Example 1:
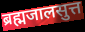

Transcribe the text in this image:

ब्रह्मजालसुत्त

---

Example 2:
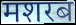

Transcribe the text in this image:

मशरब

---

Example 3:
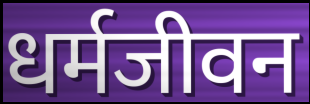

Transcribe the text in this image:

धर्मजीवन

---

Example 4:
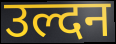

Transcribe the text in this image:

उल्दन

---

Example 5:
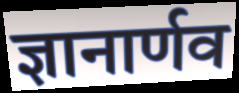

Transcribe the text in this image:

ज्ञानार्णव